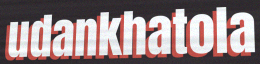
udankhatola